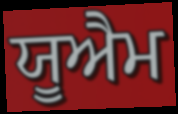
ਯੂਐਮ